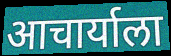
आचार्याला